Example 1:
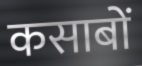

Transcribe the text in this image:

कसाबों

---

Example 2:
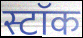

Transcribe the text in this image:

स्‍टॉक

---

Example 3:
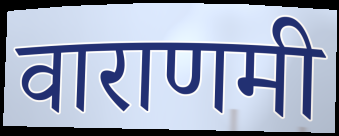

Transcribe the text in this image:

वाराणमी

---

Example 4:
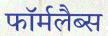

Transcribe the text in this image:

फॉर्मलैब्स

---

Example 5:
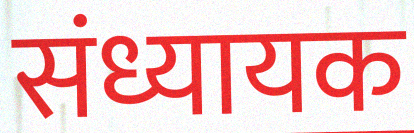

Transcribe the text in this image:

संध्यायक